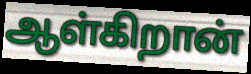
ஆள்கிறான்